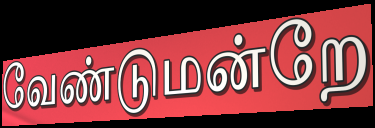
வேண்டுமன்றே